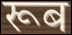
रूब